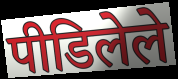
पीडिलेले